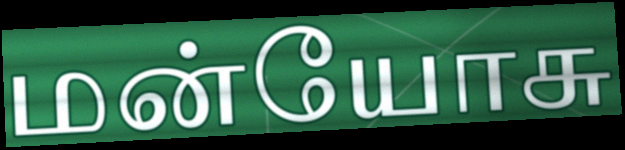
மன்யோசு